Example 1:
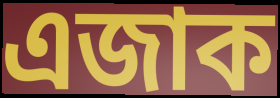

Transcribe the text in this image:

এজাক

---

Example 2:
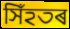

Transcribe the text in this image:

সিঁহতৰ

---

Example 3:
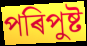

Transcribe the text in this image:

পৰিপুষ্ট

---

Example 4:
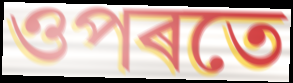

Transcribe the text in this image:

ওপৰতে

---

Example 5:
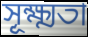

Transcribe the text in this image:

সূক্ষ্মতা